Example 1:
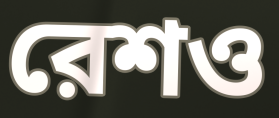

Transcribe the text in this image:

রেশও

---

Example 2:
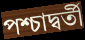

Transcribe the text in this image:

পশ্চাদ্বর্তী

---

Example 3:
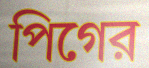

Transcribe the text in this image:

পিগের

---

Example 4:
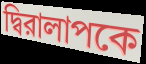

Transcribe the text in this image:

দ্বিরালাপকে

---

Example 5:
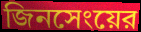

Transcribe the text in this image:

জিনসেংয়ের